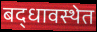
बद्धावस्थेत